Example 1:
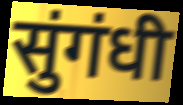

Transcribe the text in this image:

सुंगंधी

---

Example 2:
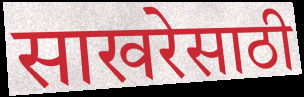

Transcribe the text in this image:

साखरेसाठी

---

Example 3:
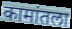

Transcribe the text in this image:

कामांतला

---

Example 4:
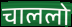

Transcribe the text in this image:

चाललो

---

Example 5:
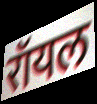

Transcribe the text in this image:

रॉयल